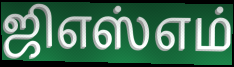
ஜிஎஸ்எம்